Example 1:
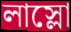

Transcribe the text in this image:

লাস্লো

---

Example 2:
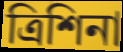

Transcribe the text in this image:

ত্রিশিনা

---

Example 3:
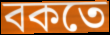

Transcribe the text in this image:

বকতে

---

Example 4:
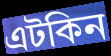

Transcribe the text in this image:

এটকিন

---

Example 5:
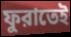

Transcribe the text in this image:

ফুরাতেই